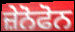
ਜ਼ੇਨੋਫੋਨ